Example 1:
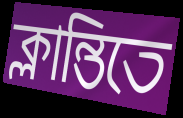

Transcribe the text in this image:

ক্লান্তিতে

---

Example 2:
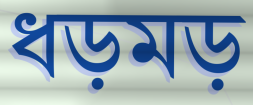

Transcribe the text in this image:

ধড়মড়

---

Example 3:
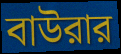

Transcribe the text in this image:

বাউরার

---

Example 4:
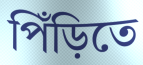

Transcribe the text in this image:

পিঁড়িতে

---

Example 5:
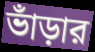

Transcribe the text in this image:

ভাঁড়ার